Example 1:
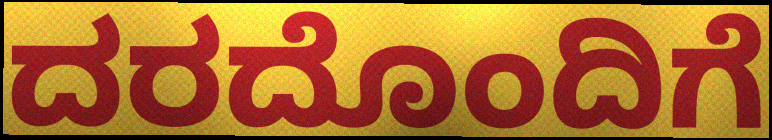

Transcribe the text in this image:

ದರದೊಂದಿಗೆ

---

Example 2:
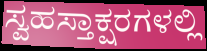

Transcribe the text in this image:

ಸ್ವಹಸ್ತಾಕ್ಷರಗಳಲ್ಲಿ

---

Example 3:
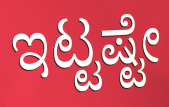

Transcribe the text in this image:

ಇಟ್ಟಷ್ಟೇ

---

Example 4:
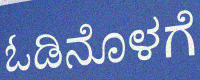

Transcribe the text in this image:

ಓಡಿನೊಳಗೆ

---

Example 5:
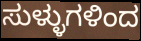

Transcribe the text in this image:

ಸುಳ್ಳುಗಳಿಂದ